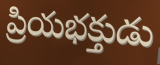
ప్రియభక్తుడు